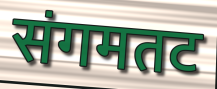
संगमतट